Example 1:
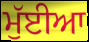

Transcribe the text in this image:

ਮੁੱਈਆ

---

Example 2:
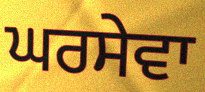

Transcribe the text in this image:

ਘਰਸੇਵਾ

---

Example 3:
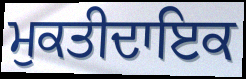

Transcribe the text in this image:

ਮੁਕਤੀਦਾਇਕ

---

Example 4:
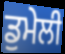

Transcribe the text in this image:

ਡੁਮੇਲੀ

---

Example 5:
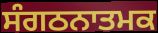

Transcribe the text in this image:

ਸੰਗਠਨਾਤਮਕ